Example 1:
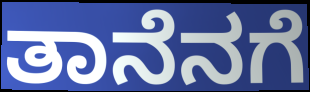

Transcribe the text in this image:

ತಾನೆನಗೆ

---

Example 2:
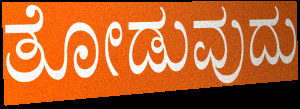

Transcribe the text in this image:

ತೋಡುವುದು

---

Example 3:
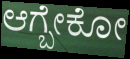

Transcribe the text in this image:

ಆಗ್ಬೇಕೋ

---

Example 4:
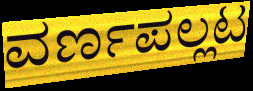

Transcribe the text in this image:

ವರ್ಣಪಲ್ಲಟ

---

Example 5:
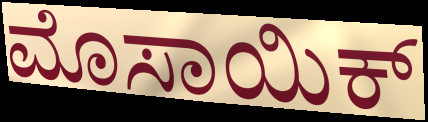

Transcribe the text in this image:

ಮೊಸಾಯಿಕ್